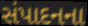
સંપાદનના